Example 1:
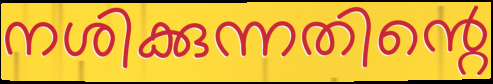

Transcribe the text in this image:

നശിക്കുന്നതിന്റെ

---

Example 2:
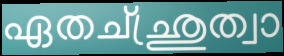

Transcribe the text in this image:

ഏതച്ഛ്രുത്വാ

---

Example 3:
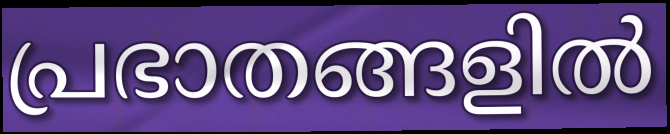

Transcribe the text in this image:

പ്രഭാതങ്ങളിൽ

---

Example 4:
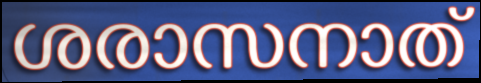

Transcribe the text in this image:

ശരാസനാത്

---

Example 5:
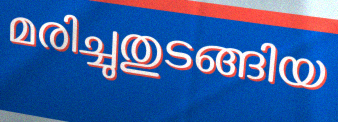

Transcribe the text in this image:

മരിച്ചുതുടങ്ങിയ